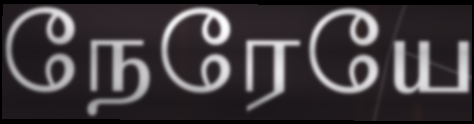
நேரேயே